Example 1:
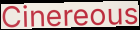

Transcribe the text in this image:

Cinereous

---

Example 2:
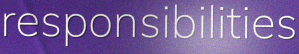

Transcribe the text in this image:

responsibilities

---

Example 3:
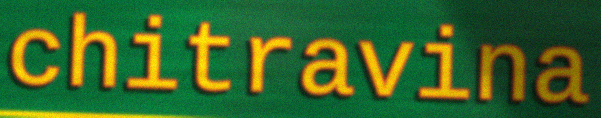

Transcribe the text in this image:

chitravina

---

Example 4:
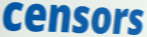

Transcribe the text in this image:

censors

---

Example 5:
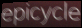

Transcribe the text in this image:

epicycle